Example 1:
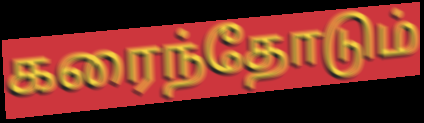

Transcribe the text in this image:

கரைந்தோடும்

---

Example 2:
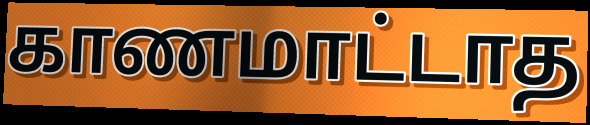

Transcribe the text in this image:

காணமாட்டாத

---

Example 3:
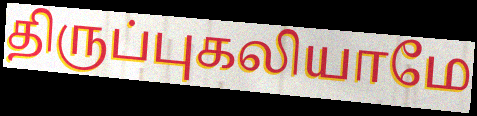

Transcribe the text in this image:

திருப்புகலியாமே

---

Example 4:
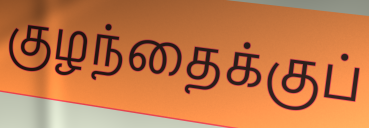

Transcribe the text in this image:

குழந்தைக்குப்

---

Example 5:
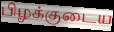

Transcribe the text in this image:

பிழக்குடைய